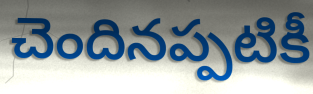
చెందినప్పటికీ